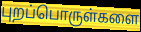
புறப்பொருள்களை